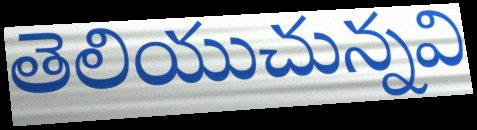
తెలియుచున్నవి